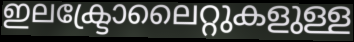
ഇലക്ട്രോലൈറ്റുകളുള്ള